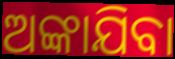
ଅଙ୍କାଯିବା